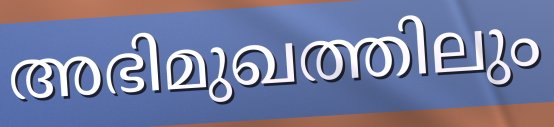
അഭിമുഖത്തിലും